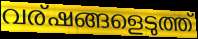
വര്ഷങ്ങളെടുത്ത്